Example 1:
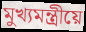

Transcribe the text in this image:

মুখ্যমন্ত্ৰীয়ে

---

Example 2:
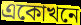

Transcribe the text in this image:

একোখনে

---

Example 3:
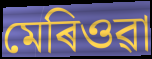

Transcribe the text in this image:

মেৰিওৱা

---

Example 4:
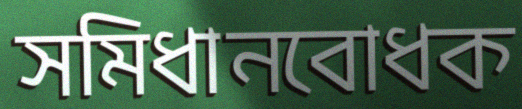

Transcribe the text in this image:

সমিধানবোধক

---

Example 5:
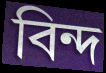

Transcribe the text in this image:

বিন্দ